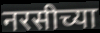
नरसीच्या